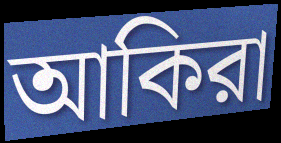
আকিরা